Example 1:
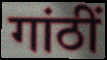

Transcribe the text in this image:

गांठीं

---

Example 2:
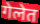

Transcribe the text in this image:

गेलेत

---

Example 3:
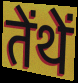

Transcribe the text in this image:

तेंथें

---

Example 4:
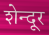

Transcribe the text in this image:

शेन्दूर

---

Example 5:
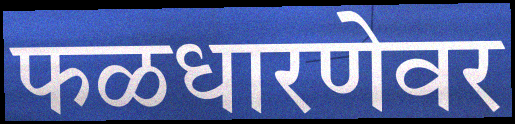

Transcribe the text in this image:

फळधारणेवर